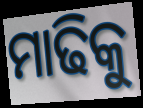
ମାଢିକୁ